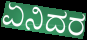
ಏನಿದರ